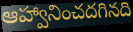
ఆహ్వానించదగినది